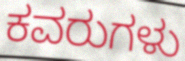
ಕವರುಗಳು